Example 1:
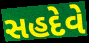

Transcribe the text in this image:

સહદેવે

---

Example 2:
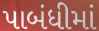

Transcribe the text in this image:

પાબંધીમાં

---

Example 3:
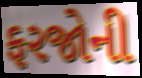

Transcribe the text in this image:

ફરજોની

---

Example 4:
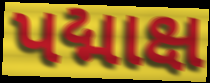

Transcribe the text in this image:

પદ્માક્ષ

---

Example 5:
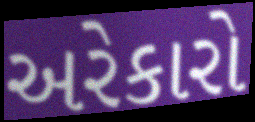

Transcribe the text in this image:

અરેકારો